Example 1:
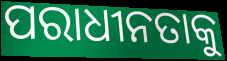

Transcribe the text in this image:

ପରାଧୀନତାକୁ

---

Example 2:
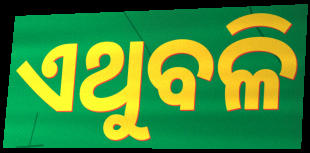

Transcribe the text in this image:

ଏଥୁବଳି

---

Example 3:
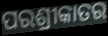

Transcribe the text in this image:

ପରଶ୍ରୀକାତର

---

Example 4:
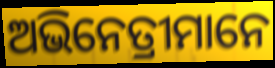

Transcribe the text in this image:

ଅଭିନେତ୍ରୀମାନେ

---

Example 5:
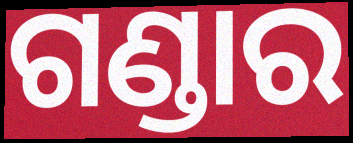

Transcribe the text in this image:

ଗଣ୍ଡାର